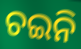
ଚଇନି